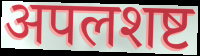
अपलशष्ट